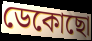
ডেকোছো